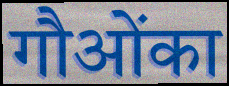
गौओंका